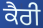
ਕੈਰੀ